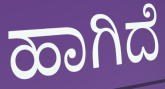
ಹಾಗಿದೆ